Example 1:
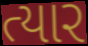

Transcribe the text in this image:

ત્યાર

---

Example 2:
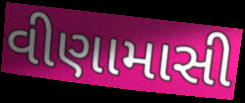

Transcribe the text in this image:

વીણામાસી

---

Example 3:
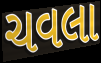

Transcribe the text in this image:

ચવલા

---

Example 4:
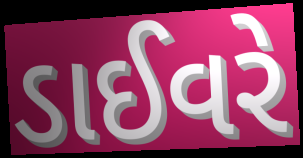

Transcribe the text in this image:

ડાઈવરે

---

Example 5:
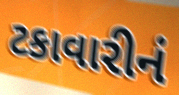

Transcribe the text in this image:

ટકાવારીનં